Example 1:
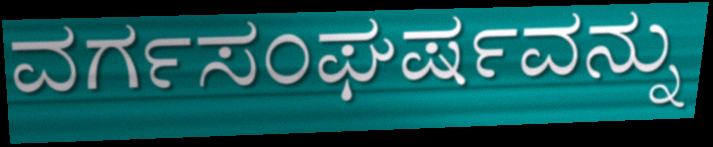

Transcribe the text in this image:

ವರ್ಗಸಂಘರ್ಷವನ್ನು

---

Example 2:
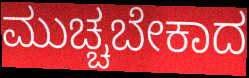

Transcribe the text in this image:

ಮುಚ್ಚಬೇಕಾದ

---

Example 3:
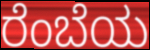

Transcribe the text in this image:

ರೆಂಬೆಯ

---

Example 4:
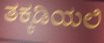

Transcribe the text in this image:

ತಕ್ಕಡಿಯಲಿ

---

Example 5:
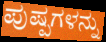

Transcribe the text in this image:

ಪುಷ್ಪಗಳನ್ನು